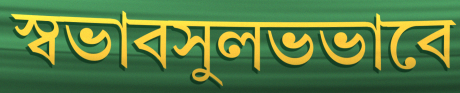
স্বভাবসুলভভাবে